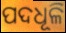
ପଦଧୂଳି